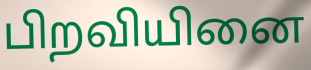
பிறவியினை